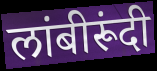
लांबीरूंदी